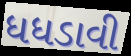
ધધડાવી